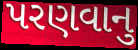
પરણવાનુ